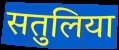
सतुलिया